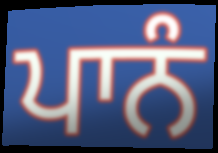
ਪਾਨੰ